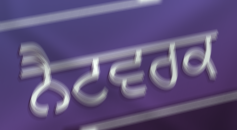
ਨੈਟਵਰਕ